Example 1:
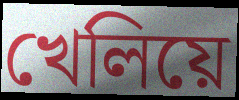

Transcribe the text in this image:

খেলিয়ে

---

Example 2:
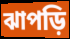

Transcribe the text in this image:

ঝাপড়ি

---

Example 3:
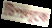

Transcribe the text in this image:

টিপলুকে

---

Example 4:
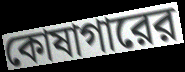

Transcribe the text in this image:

কোষাগারের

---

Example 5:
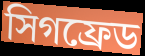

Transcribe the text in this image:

সিগফ্রেড